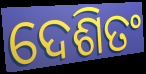
ଦେଶିତଂ